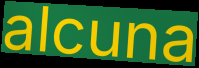
alcuna